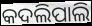
କଦଲିପାଲି